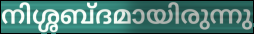
നിശ്ശബ്ദമായിരുന്നു